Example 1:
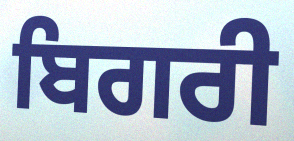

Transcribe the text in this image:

ਬਿਗਰੀ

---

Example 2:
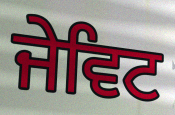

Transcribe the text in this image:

ਜੇਵਿਟ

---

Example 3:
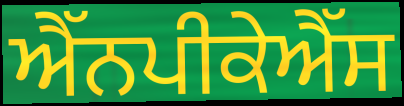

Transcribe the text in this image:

ਐੱਨਪੀਕੇਐੱਸ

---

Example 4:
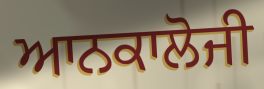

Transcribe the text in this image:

ਆਨਕਾਲੋਜੀ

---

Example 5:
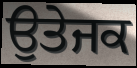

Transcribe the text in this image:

ਉਤੇਜਕ